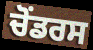
ਚੋਂਡਰਸ